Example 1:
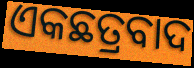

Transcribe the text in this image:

ଏକଛତ୍ରବାଦ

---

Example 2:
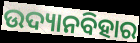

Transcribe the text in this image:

ଉଦ୍ୟାନବିହାର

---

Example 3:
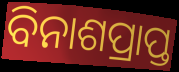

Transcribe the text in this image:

ବିନାଶପ୍ରାପ୍ତ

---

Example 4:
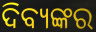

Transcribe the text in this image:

ଦିବ୍ୟଙ୍କର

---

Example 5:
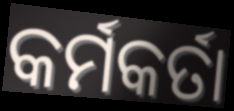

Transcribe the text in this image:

କର୍ମକର୍ତା